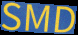
SMD